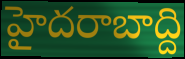
హైదరాబాద్ది